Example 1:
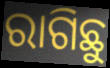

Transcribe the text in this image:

ରାଗିଛୁ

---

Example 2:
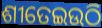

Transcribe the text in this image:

ଶୀତେଇଉଠି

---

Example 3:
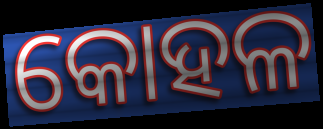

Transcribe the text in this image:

କୋହଳ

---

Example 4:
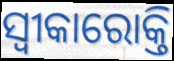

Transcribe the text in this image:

ସ୍ୱୀକାରୋକ୍ତି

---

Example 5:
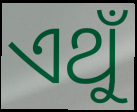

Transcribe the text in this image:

ଏଥୁଁ